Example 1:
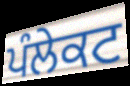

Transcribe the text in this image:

ਪੰਲੇਕਟ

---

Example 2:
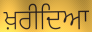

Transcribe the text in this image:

ਖ਼ਰੀਦਿਆ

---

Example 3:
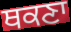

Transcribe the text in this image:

ਥਕਣਾ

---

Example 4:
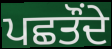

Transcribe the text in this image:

ਪਛਤੌਂਦੇ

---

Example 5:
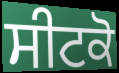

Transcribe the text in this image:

ਸੀਟਕੋ